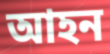
আহন